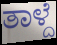
ತಾಳ್ದೆ